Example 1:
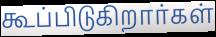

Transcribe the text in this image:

கூப்பிடுகிறார்கள்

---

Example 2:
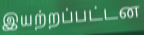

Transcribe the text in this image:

இயற்றப்பட்டன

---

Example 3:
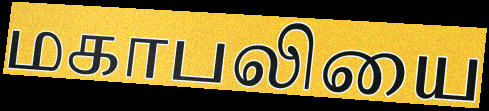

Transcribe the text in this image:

மகாபலியை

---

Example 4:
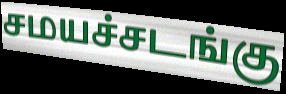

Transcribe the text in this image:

சமயச்சடங்கு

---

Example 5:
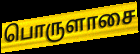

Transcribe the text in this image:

பொருளாசை